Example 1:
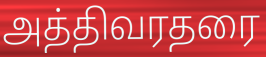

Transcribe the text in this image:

அத்திவரதரை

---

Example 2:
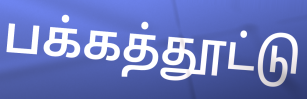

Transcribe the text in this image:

பக்கத்தூட்டு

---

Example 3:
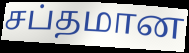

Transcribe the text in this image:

சப்தமான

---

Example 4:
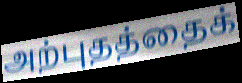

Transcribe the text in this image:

அற்புதத்தைக்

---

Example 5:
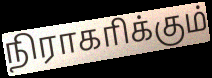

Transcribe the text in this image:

நிராகரிக்கும்